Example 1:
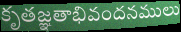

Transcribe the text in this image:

కృతజ్ఞతాభివందనములు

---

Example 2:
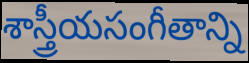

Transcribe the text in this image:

శాస్త్రీయసంగీతాన్ని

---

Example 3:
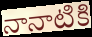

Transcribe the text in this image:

నానాటికి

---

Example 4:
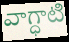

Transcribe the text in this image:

వాగ్ధాటి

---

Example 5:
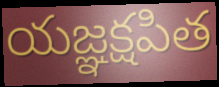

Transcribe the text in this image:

యజ్ఞక్షపిత